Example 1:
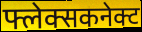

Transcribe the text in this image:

फ्लेक्सकनेक्ट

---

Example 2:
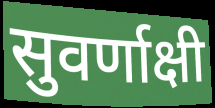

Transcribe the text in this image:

सुवर्णाक्षी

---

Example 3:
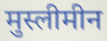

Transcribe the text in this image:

मुस्लीमीन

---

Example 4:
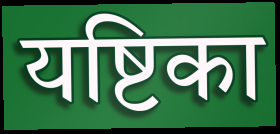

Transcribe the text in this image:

यष्टिका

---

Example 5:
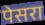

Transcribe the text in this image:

पेसरा